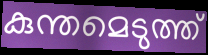
കുന്തമെടുത്ത്